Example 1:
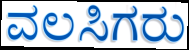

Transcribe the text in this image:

ವಲಸಿಗರು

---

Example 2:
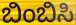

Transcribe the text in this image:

ಬಿಂಬಿಸಿ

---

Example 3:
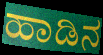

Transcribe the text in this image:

ಹಾಡಿನ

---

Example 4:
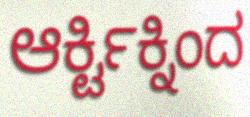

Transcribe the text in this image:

ಆರ್ಕ್ಟಿಕ್ನಿಂದ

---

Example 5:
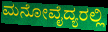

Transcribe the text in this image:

ಮನೋವೈದ್ಯರಲ್ಲಿ